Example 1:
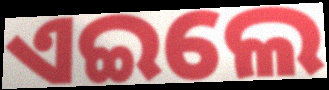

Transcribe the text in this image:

ଏଇଲେ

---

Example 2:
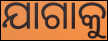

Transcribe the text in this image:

ଯାଗାକୁ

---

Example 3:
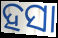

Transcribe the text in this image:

ହସା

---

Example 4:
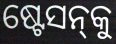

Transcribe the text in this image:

ଷ୍ଟେସନ୍‍କୁ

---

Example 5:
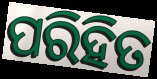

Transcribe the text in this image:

ପରିହିତ